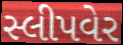
સ્લીપવેર